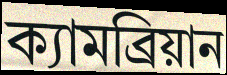
ক্যামব্রিয়ান